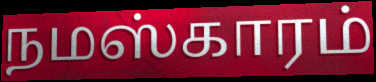
நமஸ்காரம்